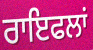
ਰਾਇਫਲਾਂ